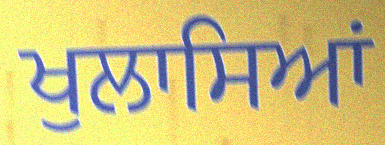
ਖੁਲਾਸਿਆਂ